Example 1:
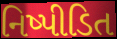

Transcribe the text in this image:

નિષ્પીડિત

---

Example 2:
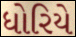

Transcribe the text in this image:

ધોરિયે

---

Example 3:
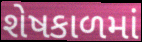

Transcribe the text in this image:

શેષકાળમાં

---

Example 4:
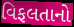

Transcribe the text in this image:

વિફલતાનો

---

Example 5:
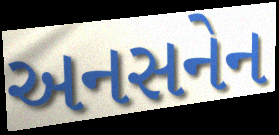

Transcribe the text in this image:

અનસનેન